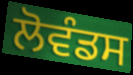
ਲੋਵੰਡਸ